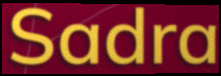
Sadra